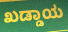
ಖಡ್ಡಾಯ